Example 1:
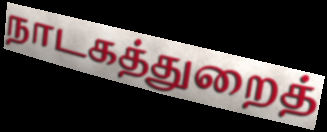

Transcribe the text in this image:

நாடகத்துறைத்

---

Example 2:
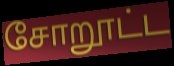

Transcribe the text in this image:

சோறூட்ட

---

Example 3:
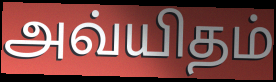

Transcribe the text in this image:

அவ்யிதம்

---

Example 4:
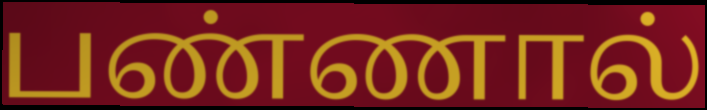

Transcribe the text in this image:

பண்ணால்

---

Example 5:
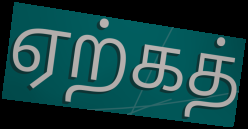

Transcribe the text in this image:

ஏற்கத்